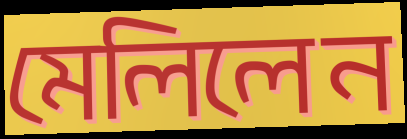
মেলিলেন